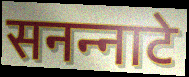
सनन्नाटे